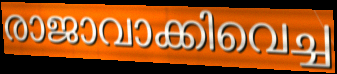
രാജാവാക്കിവെച്ച